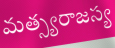
మత్స్యరాజస్య